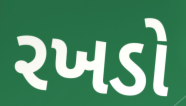
રખડો